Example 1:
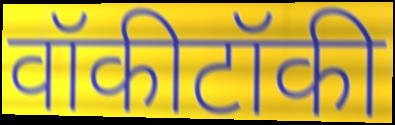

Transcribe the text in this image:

वॉकीटॉकी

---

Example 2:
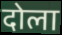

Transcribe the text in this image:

दोला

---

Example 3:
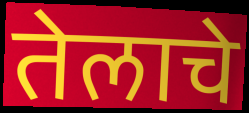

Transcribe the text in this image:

तेलाचे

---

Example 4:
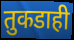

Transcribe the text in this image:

तुकडाही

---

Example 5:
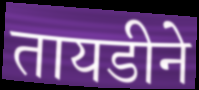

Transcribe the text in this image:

तायडीने